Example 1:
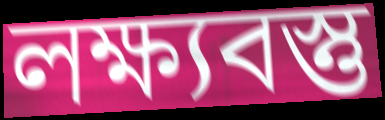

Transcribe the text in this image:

লক্ষ্যবস্তু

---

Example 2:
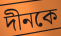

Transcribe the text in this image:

দীনকে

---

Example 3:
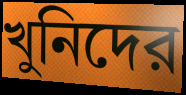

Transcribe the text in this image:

খুনিদের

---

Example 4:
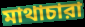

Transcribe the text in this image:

মাথাচারা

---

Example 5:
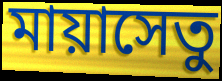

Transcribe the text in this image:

মায়াসেতু